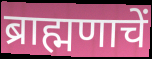
ब्राह्मणाचें